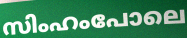
സിംഹംപോലെ